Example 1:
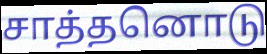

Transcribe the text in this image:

சாத்தனொடு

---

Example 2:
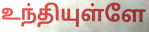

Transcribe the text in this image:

உந்தியுள்ளே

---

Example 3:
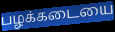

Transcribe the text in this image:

பழக்கடையை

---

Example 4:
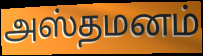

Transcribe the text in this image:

அஸ்தமனம்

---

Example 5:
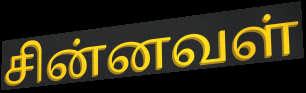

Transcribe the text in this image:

சின்னவள்